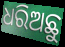
ଧରିଅଛୁ